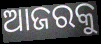
ଆଜରକୁ